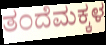
ತಂದೆಮಕ್ಕಳ